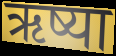
ऋष्या